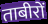
ताबीरों